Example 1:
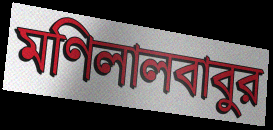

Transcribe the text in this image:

মণিলালবাবুর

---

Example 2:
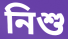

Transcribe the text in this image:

নিশু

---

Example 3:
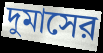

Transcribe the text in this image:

দুমাসের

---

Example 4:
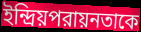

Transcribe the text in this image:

ইন্দ্রিয়পরায়নতাকে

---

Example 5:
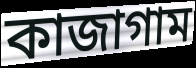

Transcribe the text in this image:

কাজাগাম